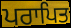
ਪਰਾਪਿਤ